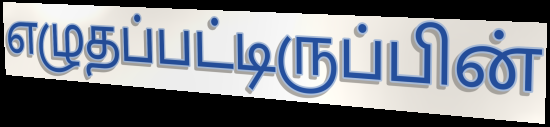
எழுதப்பட்டிருப்பின்